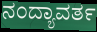
ನಂದ್ಯಾವರ್ತ